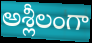
అశ్లీలంగా